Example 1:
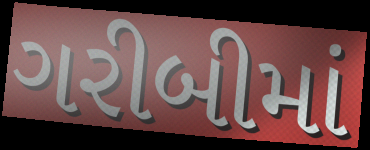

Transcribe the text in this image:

ગરીબીમાં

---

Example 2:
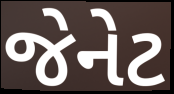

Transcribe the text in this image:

જેનેટ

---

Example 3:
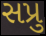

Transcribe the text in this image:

સપ્રુ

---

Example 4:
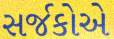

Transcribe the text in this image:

સર્જકોએ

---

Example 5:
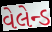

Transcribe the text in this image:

વેલેન્ડ